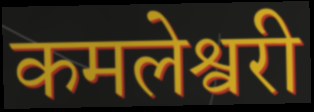
कमलेश्वरी